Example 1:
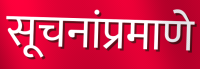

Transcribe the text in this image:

सूचनांप्रमाणे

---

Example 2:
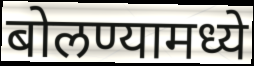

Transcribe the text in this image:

बोलण्यामध्ये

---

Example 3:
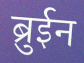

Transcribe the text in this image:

ब्रुईन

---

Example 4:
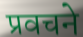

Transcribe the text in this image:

प्रवचने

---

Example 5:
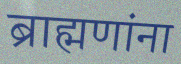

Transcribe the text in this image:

ब्राह्मणांना